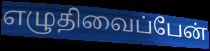
எழுதிவைப்பேன்